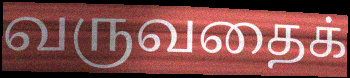
வருவதைக்